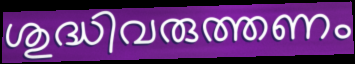
ശുദ്ധിവരുത്തണം